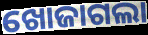
ଖୋଜାଗଲା